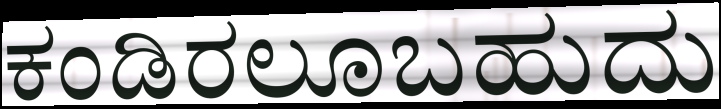
ಕಂಡಿರಲೂಬಹುದು